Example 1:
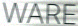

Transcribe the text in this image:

WARE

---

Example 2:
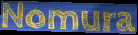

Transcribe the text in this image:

Nomura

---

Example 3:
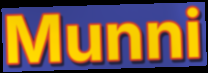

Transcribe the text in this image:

Munni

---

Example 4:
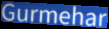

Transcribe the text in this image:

Gurmehar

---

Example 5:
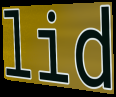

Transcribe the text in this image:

lid